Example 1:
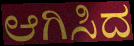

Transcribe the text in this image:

ಆಗಿಸಿದ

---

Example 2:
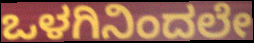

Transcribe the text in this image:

ಒಳಗಿನಿಂದಲೇ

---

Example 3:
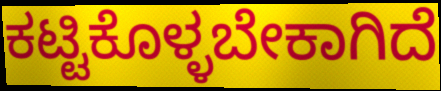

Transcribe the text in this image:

ಕಟ್ಟಿಕೊಳ್ಳಬೇಕಾಗಿದೆ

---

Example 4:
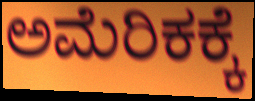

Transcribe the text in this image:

ಅಮೆರಿಕಕ್ಕೆ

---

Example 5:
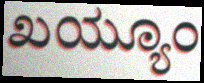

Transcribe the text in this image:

ಖಯ್ಯೂಂ